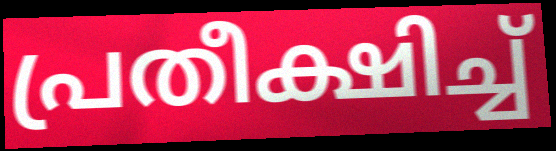
പ്രതീക്ഷിച്ച്